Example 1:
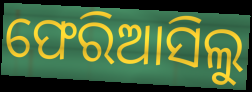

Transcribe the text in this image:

ଫେରିଆସିଲୁ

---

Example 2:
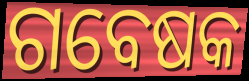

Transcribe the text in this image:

ଗବେଷକ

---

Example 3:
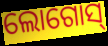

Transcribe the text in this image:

ଲୋଗୋସ୍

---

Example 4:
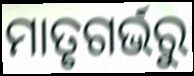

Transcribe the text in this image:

ମାତୃଗର୍ଭରୁ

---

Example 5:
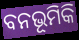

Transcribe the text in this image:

ବନଭୂମିକି